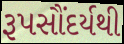
રૂપસૌંદર્યથી